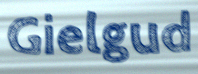
Gielgud